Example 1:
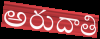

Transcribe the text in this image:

అరుదాతి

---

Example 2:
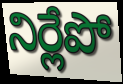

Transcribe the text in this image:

నిర్లేపో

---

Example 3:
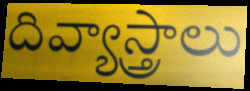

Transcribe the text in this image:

దివ్యాస్త్రాలు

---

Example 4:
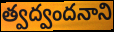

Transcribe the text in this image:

త్వద్వందనాని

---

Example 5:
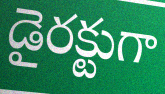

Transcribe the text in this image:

డైరక్టుగా